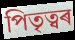
পিতৃত্বৰ